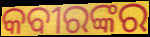
କବୀରଙ୍କର